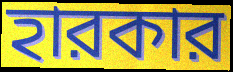
হারকার